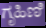
ಗೃಹಿಣಿ